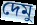
দেমু